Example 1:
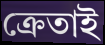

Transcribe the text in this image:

ক্রেতাই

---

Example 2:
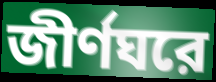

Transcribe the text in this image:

জীর্ণঘরে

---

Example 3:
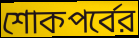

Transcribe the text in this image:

শোকপর্বের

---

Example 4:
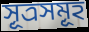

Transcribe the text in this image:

সূত্রসমূহ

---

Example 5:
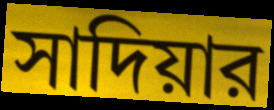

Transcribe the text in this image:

সাদিয়ার